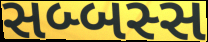
સબ્બસ્સ